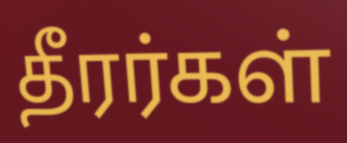
தீரர்கள்